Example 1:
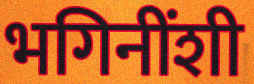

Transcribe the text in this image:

भगिनींशी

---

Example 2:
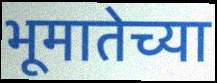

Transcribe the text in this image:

भूमातेच्या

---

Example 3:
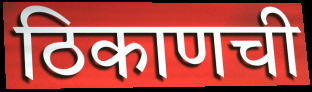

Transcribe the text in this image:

ठिकाणची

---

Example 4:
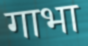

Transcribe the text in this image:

गाभा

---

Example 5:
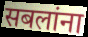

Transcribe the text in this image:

सबलांना